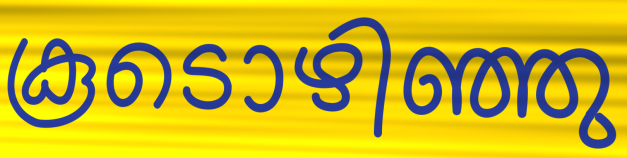
കൂടൊഴിഞ്ഞു